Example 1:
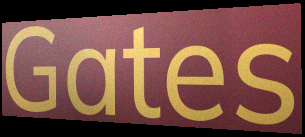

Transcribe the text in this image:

Gates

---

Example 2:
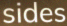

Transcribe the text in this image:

sides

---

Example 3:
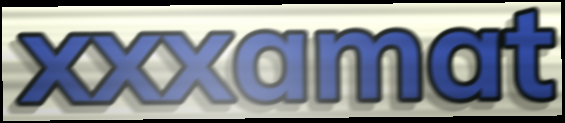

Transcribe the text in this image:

xxxamat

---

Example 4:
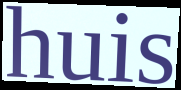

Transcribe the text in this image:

huis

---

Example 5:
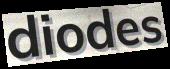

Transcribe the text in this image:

diodes